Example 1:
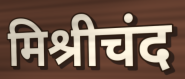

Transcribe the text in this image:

मिश्रीचंद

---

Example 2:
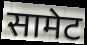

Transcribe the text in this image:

सामेट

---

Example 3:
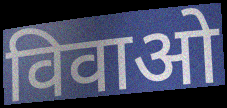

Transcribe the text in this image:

विवाओ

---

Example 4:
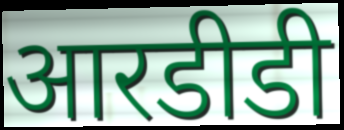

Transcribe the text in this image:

आरडीडी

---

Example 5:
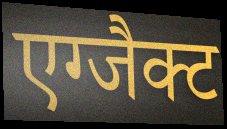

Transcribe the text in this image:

एग्जैक्ट